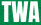
TWA